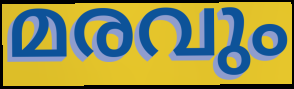
മരവും